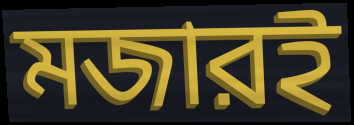
মজারই